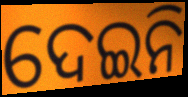
ଦେଇନି